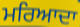
ਮਰਿਆਦਾ